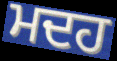
ਮਦਹ